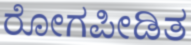
ರೋಗಪೀಡಿತ